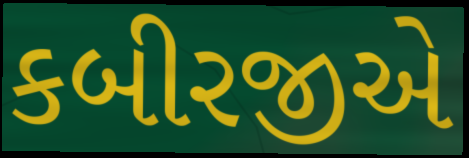
કબીરજીએ